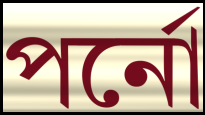
পর্নো